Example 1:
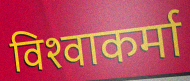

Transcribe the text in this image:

विश्वाकर्मा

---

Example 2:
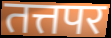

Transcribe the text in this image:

तत्तपर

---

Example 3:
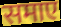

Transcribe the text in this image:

समाए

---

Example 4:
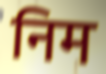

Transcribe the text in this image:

निम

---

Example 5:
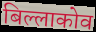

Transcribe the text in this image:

बिल्लाकोव